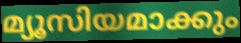
മ്യൂസിയമാക്കും